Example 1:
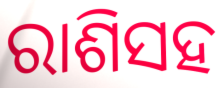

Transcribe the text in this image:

ରାଶିସହ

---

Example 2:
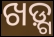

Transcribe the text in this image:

ଖଡ଼୍ଗ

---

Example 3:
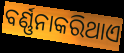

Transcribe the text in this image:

ବର୍ଣ୍ଣନାକରିଥାଏ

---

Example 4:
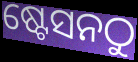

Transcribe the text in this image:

ଷ୍ଟେସନଠୁ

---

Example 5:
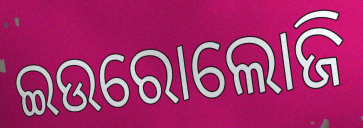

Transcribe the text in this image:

ଇଉରୋଲୋଜି